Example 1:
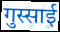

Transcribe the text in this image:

गुस्साई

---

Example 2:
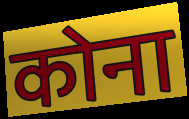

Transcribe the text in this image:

कोना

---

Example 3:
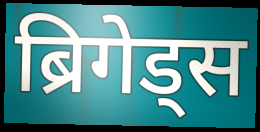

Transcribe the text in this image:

ब्रिगेड्स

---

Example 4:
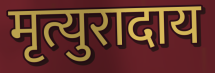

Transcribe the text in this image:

मृत्युरादाय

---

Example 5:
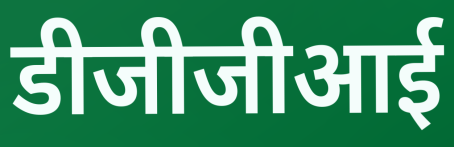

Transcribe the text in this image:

डीजीजीआई